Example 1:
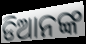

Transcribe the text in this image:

ଡିଆନଙ୍କ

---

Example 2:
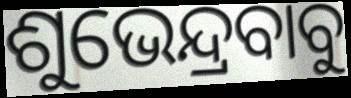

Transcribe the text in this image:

ଶୁଭେନ୍ଦ୍ରବାବୁ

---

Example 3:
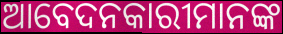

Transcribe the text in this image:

ଆବେଦନକାରୀମାନଙ୍କ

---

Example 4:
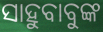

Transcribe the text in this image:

ସାହୁବାବୁଙ୍କ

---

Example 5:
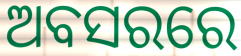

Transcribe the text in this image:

ଅବସରରେ